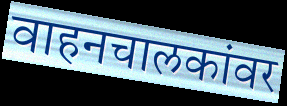
वाहनचालकांवर